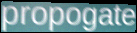
propogate